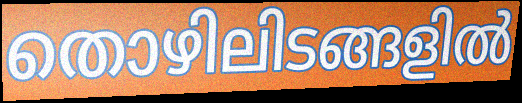
തൊഴിലിടങ്ങളിൽ